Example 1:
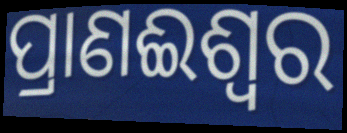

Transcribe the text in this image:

ପ୍ରାଣଈଶ୍ୱର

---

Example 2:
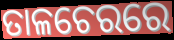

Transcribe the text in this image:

ତାଳଚେରରେ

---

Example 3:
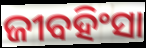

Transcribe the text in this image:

ଜୀବହିଂସା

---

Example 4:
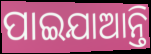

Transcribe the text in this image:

ପାଇଯାଆନ୍ତି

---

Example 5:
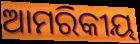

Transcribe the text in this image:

ଆମରିକୀୟ